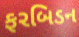
ફરબિડન